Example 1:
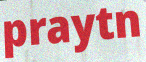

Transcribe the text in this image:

praytn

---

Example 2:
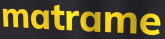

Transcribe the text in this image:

matrame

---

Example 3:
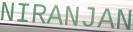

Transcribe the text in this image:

NIRANJAN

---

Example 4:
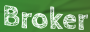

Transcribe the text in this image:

Broker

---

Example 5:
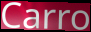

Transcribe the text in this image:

Carro